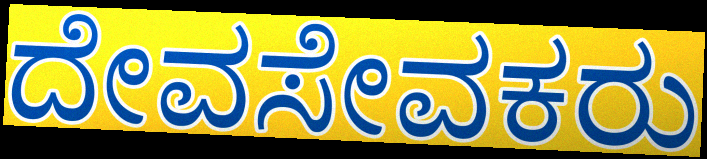
ದೇವಸೇವಕರು